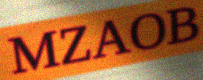
MZAOB